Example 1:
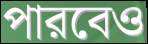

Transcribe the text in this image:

পারবেও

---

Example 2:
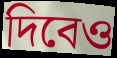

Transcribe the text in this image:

দিবেও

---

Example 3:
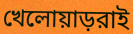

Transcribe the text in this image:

খেলোয়াড়রাই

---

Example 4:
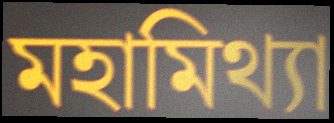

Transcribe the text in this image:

মহামিথ্যা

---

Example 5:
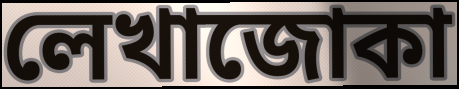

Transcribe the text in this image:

লেখাজোকা